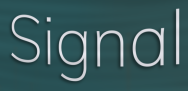
Signal